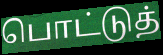
பொட்டுத்